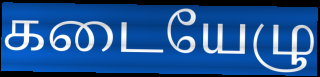
கடையேழு